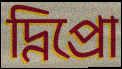
দ্নিপ্রো